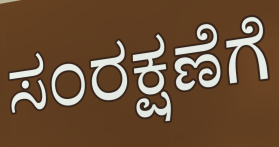
ಸಂರಕ್ಷಣೆಗೆ